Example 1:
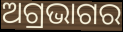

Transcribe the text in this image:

ଅଗ୍ରଭାଗର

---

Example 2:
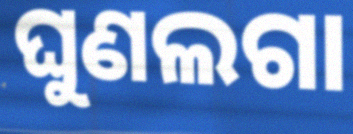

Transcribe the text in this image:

ଘୁଣଲଗା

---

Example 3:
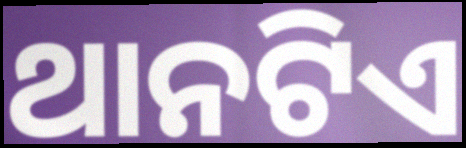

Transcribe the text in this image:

ଥାନଟିଏ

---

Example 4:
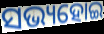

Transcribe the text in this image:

ସଭ୍ୟହୋଇ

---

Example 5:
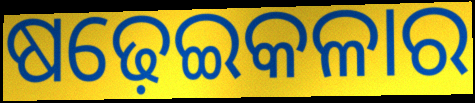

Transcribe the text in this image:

ଷଢ଼େଇକଳାର